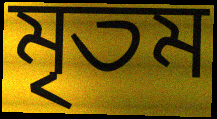
মৃতম